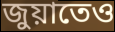
জুয়াতেও